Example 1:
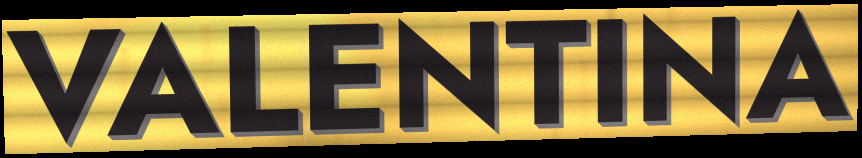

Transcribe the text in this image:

VALENTINA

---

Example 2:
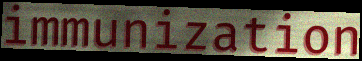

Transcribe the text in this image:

immunization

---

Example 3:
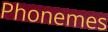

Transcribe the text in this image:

Phonemes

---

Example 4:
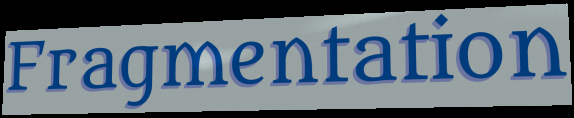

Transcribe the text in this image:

Fragmentation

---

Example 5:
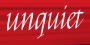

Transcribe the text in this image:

unquiet